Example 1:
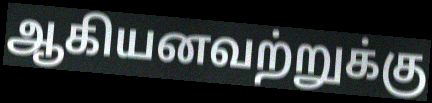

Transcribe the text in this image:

ஆகியனவற்றுக்கு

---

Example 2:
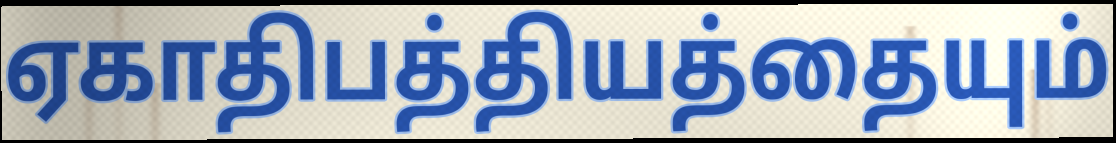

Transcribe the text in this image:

ஏகாதிபத்தியத்தையும்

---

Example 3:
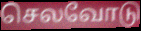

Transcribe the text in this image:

செலவோடு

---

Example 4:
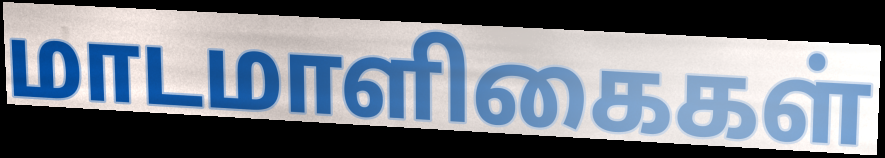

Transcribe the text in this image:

மாடமாளிகைகள்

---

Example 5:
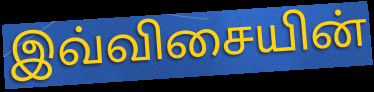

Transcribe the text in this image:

இவ்விசையின்